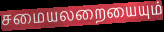
சமையலறையையும்